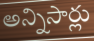
అన్నిసార్లు